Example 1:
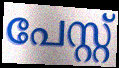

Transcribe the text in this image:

പേസ്റ്റ്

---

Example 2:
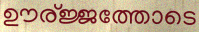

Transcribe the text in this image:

ഊര്ജ്ജത്തോടെ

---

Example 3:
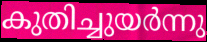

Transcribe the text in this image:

കുതിച്ചുയർന്നു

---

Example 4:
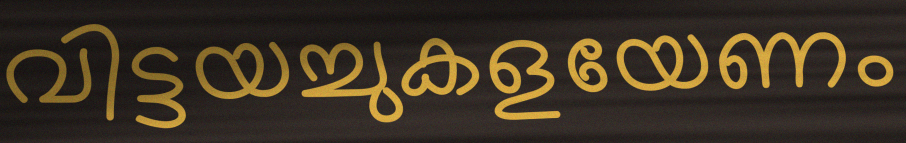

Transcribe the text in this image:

വിട്ടയച്ചുകളയേണം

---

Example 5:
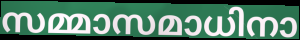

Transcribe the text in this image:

സമ്മാസമാധിനാ